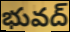
భువద్